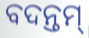
ବଦନ୍ତମ୍